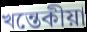
খন্তেকীয়া